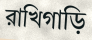
রাখিগাড়ি